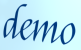
demo